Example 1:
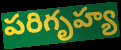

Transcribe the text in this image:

పరిగృహ్య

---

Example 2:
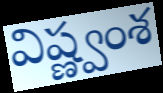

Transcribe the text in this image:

విష్ణ్వంశ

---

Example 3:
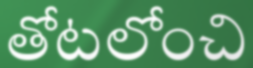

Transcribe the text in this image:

తోటలోంచి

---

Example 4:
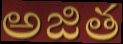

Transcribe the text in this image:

అజిత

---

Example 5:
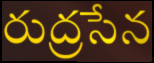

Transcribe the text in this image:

రుద్రసేన